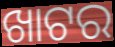
ଖାଟର